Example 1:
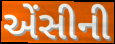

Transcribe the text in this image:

એંસીની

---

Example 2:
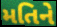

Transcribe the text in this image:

મતિને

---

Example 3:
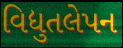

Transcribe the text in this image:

વિદ્યુતલેપન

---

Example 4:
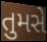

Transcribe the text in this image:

તુમસે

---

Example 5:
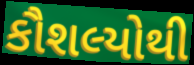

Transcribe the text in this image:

કૌશલ્યોથી